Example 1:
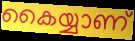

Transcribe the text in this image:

കൈയ്യാണ്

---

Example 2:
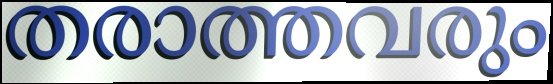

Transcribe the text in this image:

തരാത്തവരും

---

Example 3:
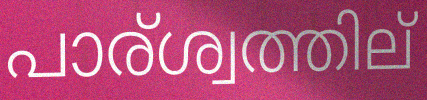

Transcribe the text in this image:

പാര്ശ്വത്തില്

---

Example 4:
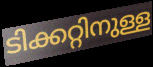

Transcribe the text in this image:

ടിക്കറ്റിനുള്ള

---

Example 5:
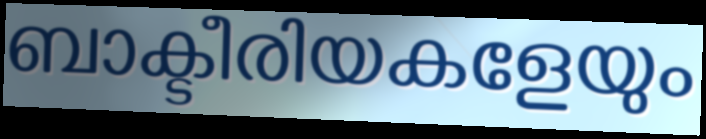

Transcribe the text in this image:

ബാക്ടീരിയകളേയും